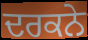
ਦਰਕਨੇ